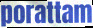
porattam